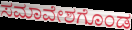
ಸಮಾವೇಶಗೊಂಡ